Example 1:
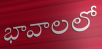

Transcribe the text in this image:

భావాలలో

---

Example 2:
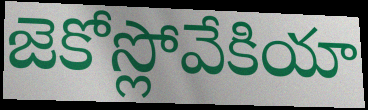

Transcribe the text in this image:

జెకోస్లోవేకియా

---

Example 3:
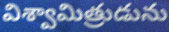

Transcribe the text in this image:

విశ్వామిత్రుడును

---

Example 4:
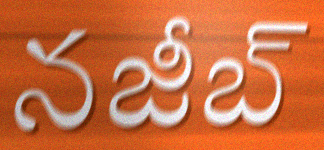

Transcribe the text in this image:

నజీబ్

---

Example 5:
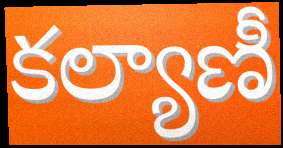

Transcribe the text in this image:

కల్యాణీ